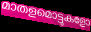
മാതളമൊട്ടുകളോ